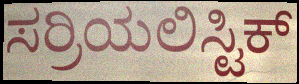
ಸರ್ರಿಯಲಿಸ್ಟಿಕ್